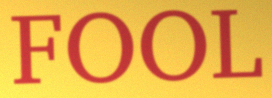
FOOL